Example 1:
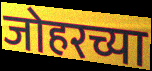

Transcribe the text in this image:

जोहरच्या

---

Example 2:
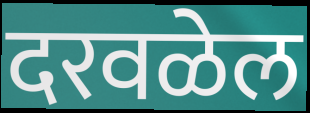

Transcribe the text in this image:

दरवळेल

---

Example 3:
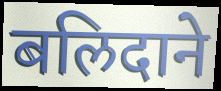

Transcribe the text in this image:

बलिदाने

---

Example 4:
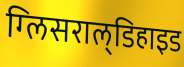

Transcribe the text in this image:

ग्लिसराल्डिहाइड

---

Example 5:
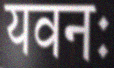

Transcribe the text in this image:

यवनः